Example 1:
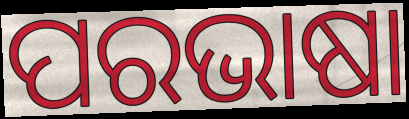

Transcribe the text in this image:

ପରଭାଷା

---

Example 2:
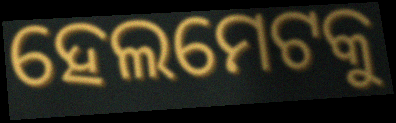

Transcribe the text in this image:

ହେଲମେଟକୁ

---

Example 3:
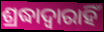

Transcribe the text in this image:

ଶ୍ରଦ୍ଧାଦ୍ୱାରାହିଁ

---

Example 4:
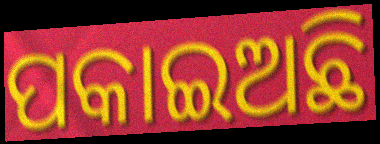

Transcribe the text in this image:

ପକାଇଅଛି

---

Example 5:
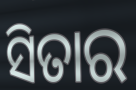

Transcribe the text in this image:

ସିତାର